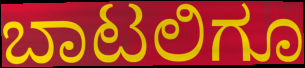
ಬಾಟಲಿಗೂ